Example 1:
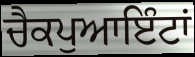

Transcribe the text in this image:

ਚੈਕਪੁਆਇੰਟਾਂ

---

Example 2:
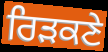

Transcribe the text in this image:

ਰਿੜਕਣੇ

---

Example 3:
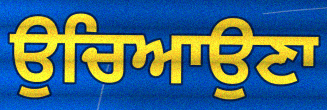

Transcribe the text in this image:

ਉਚਿਆਉਣਾ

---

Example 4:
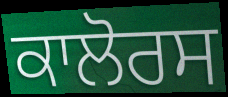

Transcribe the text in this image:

ਕਾਲੋਰਸ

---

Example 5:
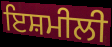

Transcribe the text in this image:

ਇਸ਼ਮੀਲੀ